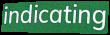
indicating